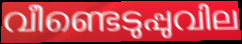
വീണ്ടെടുപ്പുവില